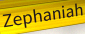
Zephaniah